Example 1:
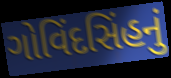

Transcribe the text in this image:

ગોવિંદસિંહનું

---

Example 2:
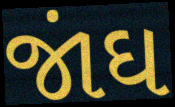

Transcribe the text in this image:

જાંઘ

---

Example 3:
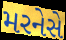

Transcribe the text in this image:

મરનેસે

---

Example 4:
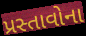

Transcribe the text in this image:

પ્રસ્તાવોના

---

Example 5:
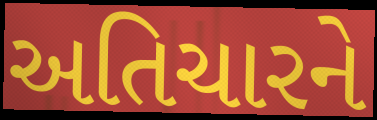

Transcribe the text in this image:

અતિચારને